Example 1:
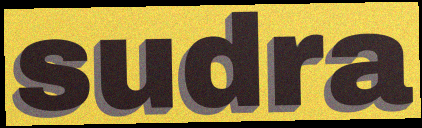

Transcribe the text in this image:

sudra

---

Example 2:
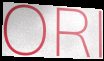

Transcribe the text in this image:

ORI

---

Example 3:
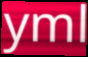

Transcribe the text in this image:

yml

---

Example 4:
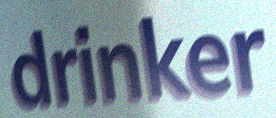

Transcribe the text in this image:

drinker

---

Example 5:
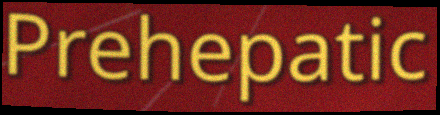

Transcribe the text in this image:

Prehepatic